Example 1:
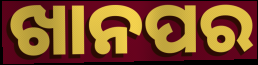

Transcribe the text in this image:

ଖାନପର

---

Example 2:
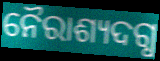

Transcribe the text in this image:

ନୈରାଶ୍ୟଦଗ୍ଧ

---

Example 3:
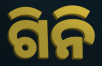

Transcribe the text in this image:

ଗିନି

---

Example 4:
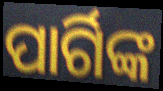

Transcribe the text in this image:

ପାର୍ଗିଙ୍କ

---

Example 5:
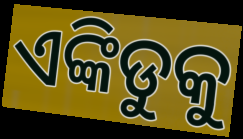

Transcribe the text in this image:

ଏଙ୍କିଡୁକୁ